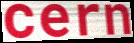
cern